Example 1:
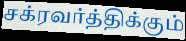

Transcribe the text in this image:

சக்ரவர்த்திக்கும்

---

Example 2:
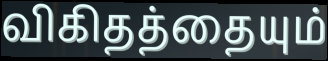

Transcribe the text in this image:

விகிதத்தையும்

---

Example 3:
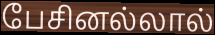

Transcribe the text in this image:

பேசினல்லால்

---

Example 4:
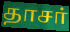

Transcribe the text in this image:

தாசர்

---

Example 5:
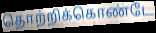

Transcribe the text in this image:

தொற்றிக்கொண்டே